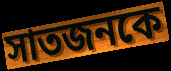
সাতজনকে